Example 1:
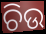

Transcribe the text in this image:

ଚିଉ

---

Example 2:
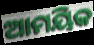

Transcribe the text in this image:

ଆମୟିକ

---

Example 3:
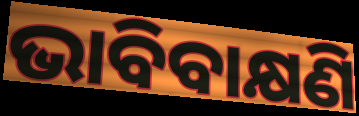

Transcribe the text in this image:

ଭାବିବାକ୍ଷଣି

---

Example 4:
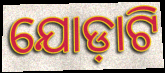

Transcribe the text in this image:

ଯୋଡ଼ାଟି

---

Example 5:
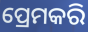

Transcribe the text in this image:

ପ୍ରେମକରି